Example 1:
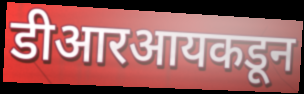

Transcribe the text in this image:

डीआरआयकडून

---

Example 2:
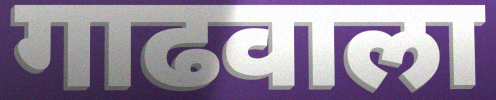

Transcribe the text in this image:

गाढवाला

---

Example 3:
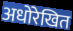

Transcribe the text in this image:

अधोरेखित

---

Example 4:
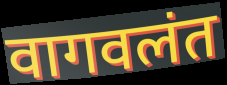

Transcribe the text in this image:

वागवलंत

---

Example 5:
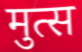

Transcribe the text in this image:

मुत्स